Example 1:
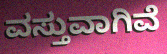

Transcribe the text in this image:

ವಸ್ತುವಾಗಿವೆ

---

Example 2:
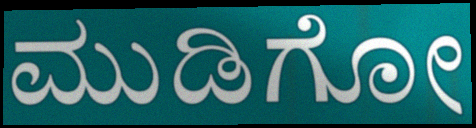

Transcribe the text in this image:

ಮುಡಿಗೋ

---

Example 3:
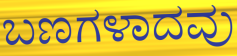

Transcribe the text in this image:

ಬಣಗಳಾದವು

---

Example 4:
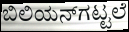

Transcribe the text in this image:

ಬಿಲಿಯನ್‌ಗಟ್ಟಲೆ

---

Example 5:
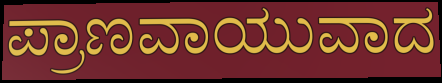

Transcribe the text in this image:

ಪ್ರಾಣವಾಯುವಾದ